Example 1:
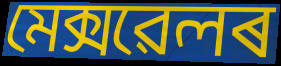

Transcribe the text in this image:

মেক্সৱেলৰ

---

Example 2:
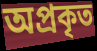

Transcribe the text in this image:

অপ্ৰকৃত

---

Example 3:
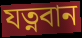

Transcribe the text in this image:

যত্নবান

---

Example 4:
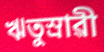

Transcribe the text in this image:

ঋতুস্ৰাৱী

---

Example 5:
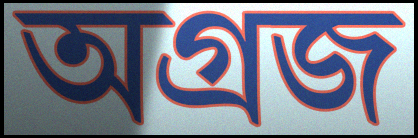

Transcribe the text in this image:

অগ্ৰজ